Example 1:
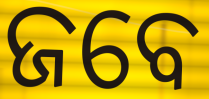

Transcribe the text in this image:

ଜବେ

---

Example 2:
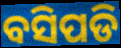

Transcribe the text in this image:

ବସିପଡି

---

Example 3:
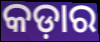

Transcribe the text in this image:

କଡ଼ାର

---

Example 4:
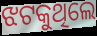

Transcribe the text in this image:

ଝଟକୁଥିଲେ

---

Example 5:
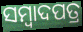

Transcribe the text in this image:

ସମ୍ୱାଦପତ୍ର